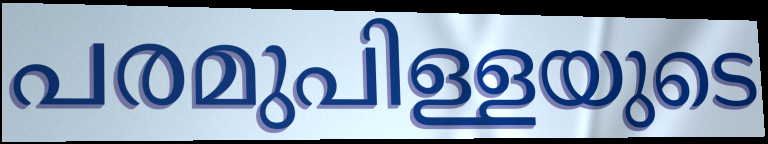
പരമുപിള്ളയുടെ